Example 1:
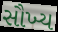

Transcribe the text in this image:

સૌખ્ય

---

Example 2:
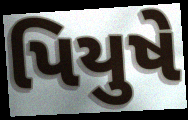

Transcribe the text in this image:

પિયુષે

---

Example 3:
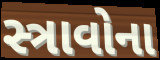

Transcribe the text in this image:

સ્ત્રાવોના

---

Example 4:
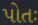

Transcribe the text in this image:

પોતઃ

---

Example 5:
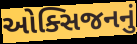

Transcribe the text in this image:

ઓક્સિજનનું